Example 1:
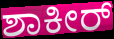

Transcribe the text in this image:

ಶಾಕೀರ್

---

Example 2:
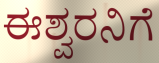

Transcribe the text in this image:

ಈಶ್ವರನಿಗೆ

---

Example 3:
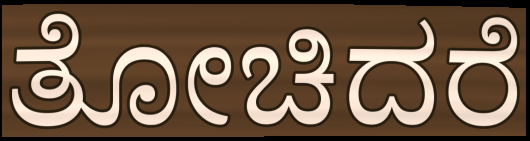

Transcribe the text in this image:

ತೋಚಿದರೆ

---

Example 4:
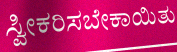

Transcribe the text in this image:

ಸ್ವೀಕರಿಸಬೇಕಾಯಿತು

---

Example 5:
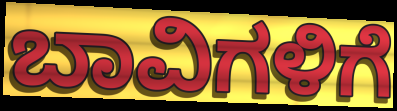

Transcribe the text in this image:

ಬಾವಿಗಳಿಗೆ